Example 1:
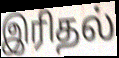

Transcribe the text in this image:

இரிதல்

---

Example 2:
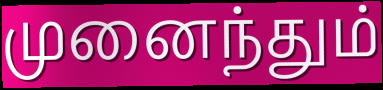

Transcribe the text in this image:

முனைந்தும்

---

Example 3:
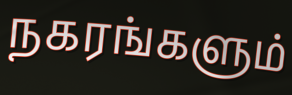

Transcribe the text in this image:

நகரங்களும்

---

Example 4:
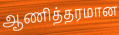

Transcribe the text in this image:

ஆணித்தரமான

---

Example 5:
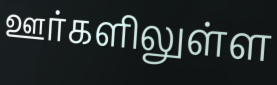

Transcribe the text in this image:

ஊர்களிலுள்ள